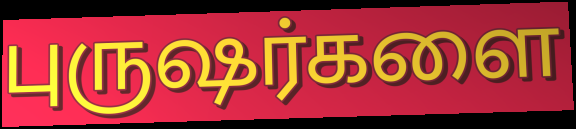
புருஷர்களை